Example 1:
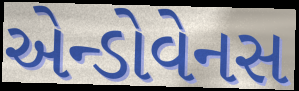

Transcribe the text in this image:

એન્ડોવેનસ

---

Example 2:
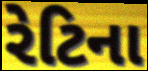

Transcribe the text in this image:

રેટિના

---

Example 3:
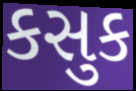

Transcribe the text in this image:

કસુક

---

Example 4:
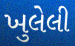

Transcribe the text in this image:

ખુલેલી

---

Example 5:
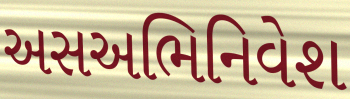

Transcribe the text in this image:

અસઅભિનિવેશ